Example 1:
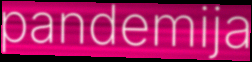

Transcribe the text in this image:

pandemija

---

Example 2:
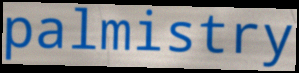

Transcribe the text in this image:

palmistry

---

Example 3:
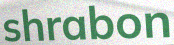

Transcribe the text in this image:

shrabon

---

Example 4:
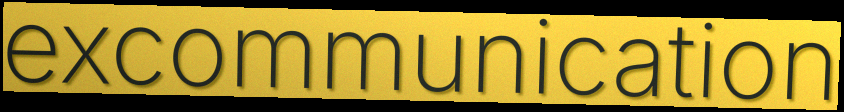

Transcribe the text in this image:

excommunication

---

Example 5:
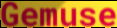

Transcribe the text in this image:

Gemuse